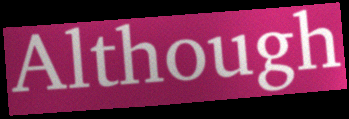
Although